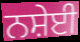
ਨਸ਼ੇਈ